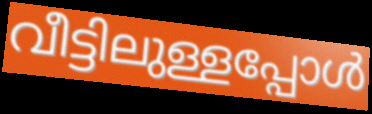
വീട്ടിലുള്ളപ്പോൾ